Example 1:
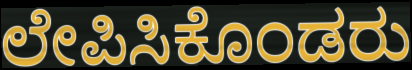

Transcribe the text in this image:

ಲೇಪಿಸಿಕೊಂಡರು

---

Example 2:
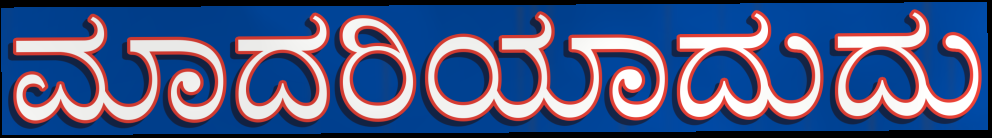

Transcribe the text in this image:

ಮಾದರಿಯಾದುದು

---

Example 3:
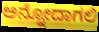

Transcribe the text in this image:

ಅನ್ನೋದಾಗಲಿ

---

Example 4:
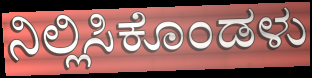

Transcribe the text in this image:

ನಿಲ್ಲಿಸಿಕೊಂಡಳು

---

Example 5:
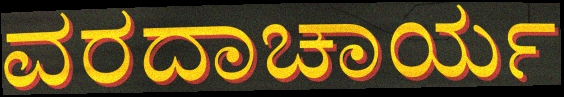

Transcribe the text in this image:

ವರದಾಚಾರ್ಯ